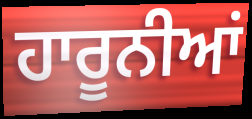
ਹਾਰੂਨੀਆਂ